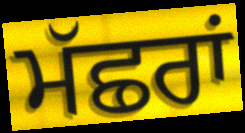
ਮੱਛਰਾਂ